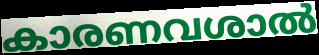
കാരണവശാൽ